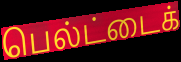
பெல்ட்டைக்